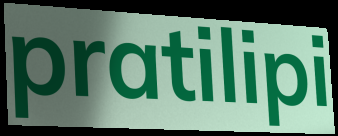
pratilipi